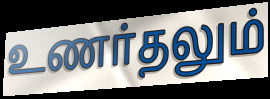
உணர்தலும்